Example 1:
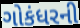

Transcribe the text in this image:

ગોકંધરની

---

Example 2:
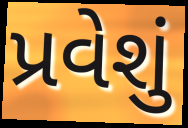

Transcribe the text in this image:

પ્રવેશું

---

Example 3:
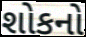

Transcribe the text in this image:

શોકનો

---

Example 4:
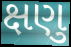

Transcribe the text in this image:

ક્ષણુ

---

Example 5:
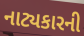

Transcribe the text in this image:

નાટ્યકારની